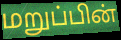
மறுப்பின்